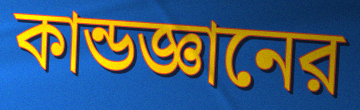
কান্ডজ্ঞানের